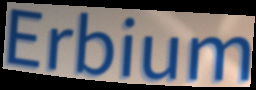
Erbium